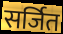
सर्जित